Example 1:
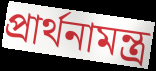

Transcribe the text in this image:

প্রার্থনামন্ত্র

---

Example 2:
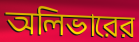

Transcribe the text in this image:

অলিভারের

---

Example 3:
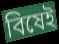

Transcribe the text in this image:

বিষেই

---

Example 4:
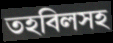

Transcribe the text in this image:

তহবিলসহ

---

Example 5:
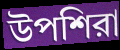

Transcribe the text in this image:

উপশিরা